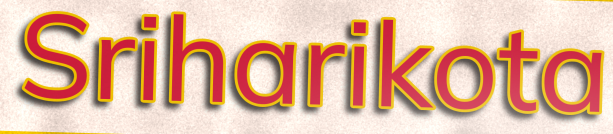
Sriharikota